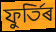
ফুৰ্তিৰ